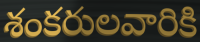
శంకరులవారికి